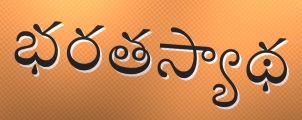
భరతస్యాథ